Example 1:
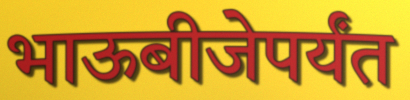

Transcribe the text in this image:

भाऊबीजेपर्यंत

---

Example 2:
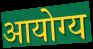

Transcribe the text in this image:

आयोग्य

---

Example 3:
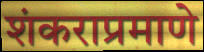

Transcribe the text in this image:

शंकराप्रमाणे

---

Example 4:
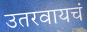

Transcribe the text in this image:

उतरवायचं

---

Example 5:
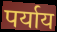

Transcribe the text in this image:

पर्याय